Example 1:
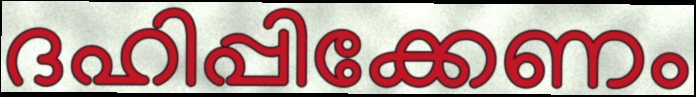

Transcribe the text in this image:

ദഹിപ്പിക്കേണം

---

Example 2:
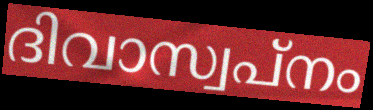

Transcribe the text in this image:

ദിവാസ്വപ്നം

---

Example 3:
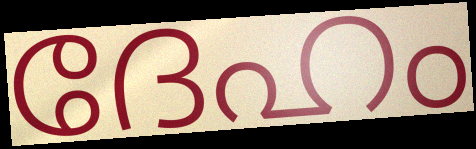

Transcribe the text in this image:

ദേഹം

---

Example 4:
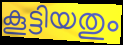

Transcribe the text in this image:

കൂട്ടിയതും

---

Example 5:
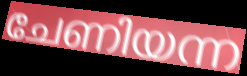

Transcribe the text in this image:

ചേണിയന്ന